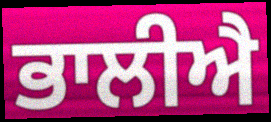
ਭਾਲੀਐ